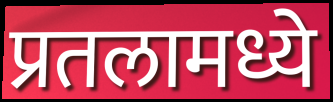
प्रतलामध्ये